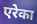
एरेका